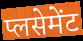
प्लसेमेंट